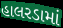
હાલરડામાં